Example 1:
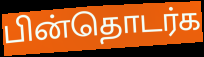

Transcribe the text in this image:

பின்தொடர்க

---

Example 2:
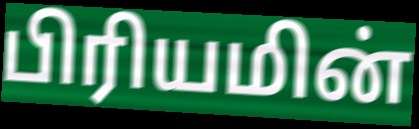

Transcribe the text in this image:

பிரியமின்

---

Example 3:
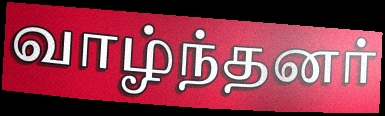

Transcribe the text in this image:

வாழ்ந்தனர்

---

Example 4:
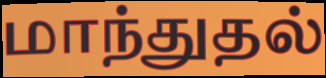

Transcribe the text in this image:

மாந்துதல்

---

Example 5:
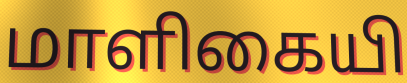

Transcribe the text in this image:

மாளிகையி